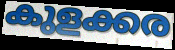
കുളക്കര